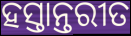
ହସ୍ତାନ୍ତରୀତ